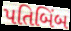
પતિબિંબ